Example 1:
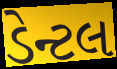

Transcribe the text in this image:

ડેન્ટલ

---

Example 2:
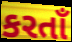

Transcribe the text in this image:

કરતાઁ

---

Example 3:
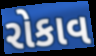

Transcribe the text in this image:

રોકાવ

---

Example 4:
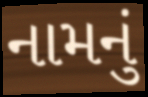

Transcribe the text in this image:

નામનું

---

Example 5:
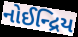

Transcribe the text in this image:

નોઈન્દ્રિય